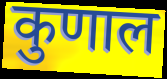
कुणाल